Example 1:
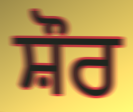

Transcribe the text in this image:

ਸ਼ੌਰ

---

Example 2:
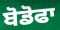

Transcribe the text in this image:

ਬੋਡੋਫਾ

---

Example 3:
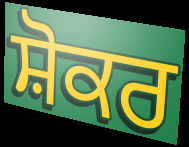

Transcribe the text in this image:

ਸ਼ੋਕਰ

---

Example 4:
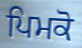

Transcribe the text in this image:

ਪਿਮਕੋ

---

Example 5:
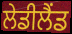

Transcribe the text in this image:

ਲੇਡੀਲੈਂਡ